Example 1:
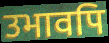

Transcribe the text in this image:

उभावपि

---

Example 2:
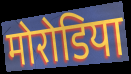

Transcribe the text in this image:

मोरोडिया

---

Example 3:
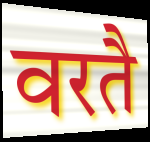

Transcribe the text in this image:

वरतै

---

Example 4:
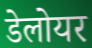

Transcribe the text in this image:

डेलोयर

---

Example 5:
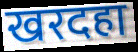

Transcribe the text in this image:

खरदहा